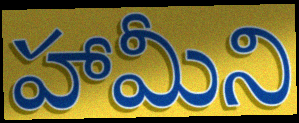
హామీని